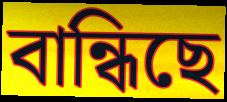
বান্ধিছে